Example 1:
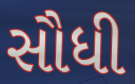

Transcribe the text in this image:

સૌધી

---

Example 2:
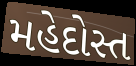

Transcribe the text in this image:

મહેદોસ્ત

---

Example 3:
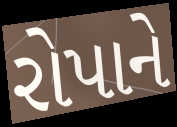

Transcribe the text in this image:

રોપાને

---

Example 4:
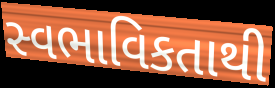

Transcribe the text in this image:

સ્વભાવિકતાથી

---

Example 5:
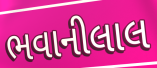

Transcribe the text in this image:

ભવાનીલાલ